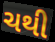
ચથી